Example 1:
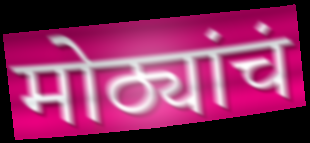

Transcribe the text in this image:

मोठ्यांचं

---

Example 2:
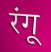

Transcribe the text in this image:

रंगू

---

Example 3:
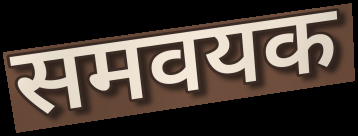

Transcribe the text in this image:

समवयक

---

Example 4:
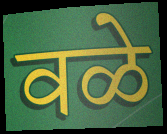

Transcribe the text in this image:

वळे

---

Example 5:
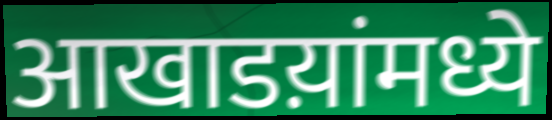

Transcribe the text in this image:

आखाडय़ांमध्ये